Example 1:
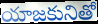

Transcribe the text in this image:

యాజకునితో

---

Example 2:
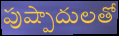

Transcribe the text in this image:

పుష్పాదులతో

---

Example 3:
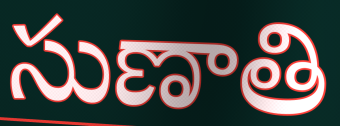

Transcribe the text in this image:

సుణాతి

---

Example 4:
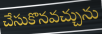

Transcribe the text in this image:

చేసుకొనవచ్చును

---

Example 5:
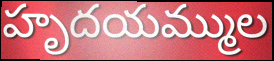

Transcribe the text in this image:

హృదయమ్ముల